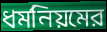
ধর্মনিয়মের